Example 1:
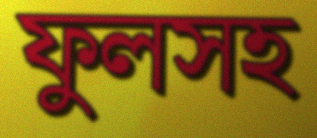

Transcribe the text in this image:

ফুলসহ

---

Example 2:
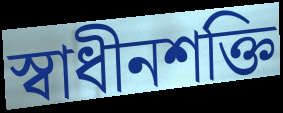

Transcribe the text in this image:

স্বাধীনশক্তি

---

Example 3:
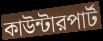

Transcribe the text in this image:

কাউন্টারপার্ট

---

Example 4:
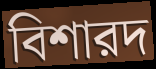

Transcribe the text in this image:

বিশারদ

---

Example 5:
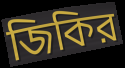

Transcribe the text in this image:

জিকির